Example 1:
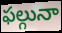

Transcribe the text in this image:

ఫల్గునా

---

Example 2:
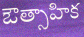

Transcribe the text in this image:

ఔత్సాహిక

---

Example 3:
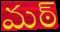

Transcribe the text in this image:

మఠ్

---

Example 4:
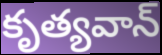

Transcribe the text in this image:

కృత్యవాన్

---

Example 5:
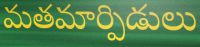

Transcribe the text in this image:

మతమార్పిడులు